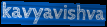
kavyavishva